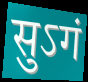
सुऽगं